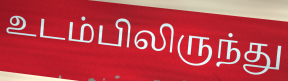
உடம்பிலிருந்து